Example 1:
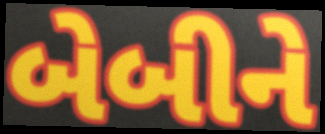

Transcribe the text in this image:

બેબીને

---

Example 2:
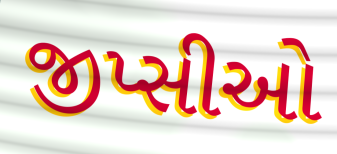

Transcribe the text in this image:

જીપ્સીઓ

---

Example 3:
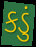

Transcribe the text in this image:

કડું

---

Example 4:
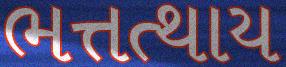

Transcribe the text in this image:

ભત્તત્થાય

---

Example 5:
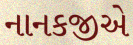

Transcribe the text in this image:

નાનકજીએ